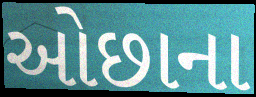
ઓછાના